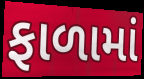
ફાળામાં